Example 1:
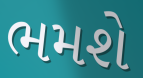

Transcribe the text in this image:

ભમશે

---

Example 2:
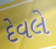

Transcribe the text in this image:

દેવલે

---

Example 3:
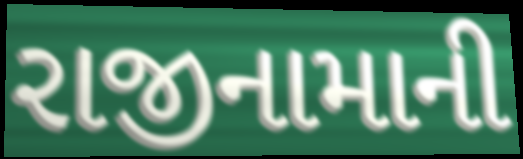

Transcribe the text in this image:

રાજીનામાની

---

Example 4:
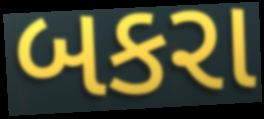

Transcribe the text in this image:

બકરા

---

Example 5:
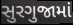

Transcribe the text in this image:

સુરગુજામાં